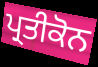
ਪ੍ਰਤੀਕੋਨ